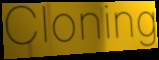
Cloning